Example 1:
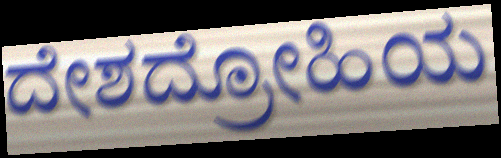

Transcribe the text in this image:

ದೇಶದ್ರೋಹಿಯ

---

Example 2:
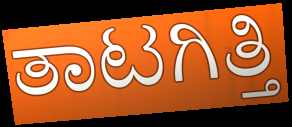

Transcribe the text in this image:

ತಾಟಗಿತ್ತಿ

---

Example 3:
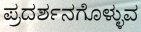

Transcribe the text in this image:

ಪ್ರದರ್ಶನಗೊಳ್ಳುವ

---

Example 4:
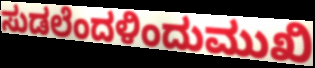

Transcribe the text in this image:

ಸುಡಲೆಂದಳಿಂದುಮುಖಿ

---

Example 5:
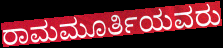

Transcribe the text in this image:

ರಾಮಮೂರ್ತಿಯವರು